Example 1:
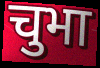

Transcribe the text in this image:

चुभा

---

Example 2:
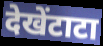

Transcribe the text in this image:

देखेंटाटा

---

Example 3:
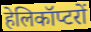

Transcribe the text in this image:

हेलिकॉप्टरों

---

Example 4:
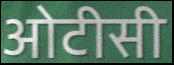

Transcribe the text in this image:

ओटीसी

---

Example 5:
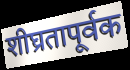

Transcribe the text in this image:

शीघ्रतापूर्वक